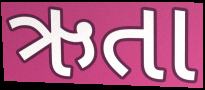
ઋતા